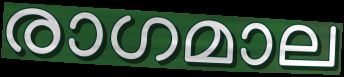
രാഗമാല